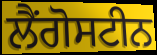
ਲੈਂਗੋਸਟੀਨ